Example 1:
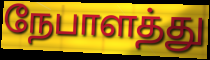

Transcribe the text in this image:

நேபாளத்து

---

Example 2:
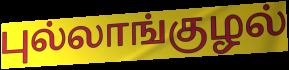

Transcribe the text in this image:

புல்லாங்குழல்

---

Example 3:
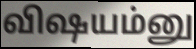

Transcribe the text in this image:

விஷயம்னு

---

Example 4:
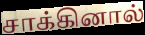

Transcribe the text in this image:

சாக்கினால்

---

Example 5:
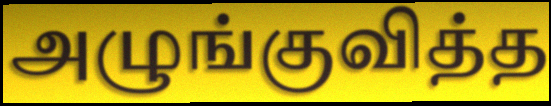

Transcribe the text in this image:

அழுங்குவித்த